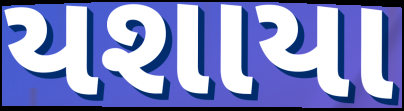
યશાયા